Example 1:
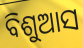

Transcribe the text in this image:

ବିଶୁଆସ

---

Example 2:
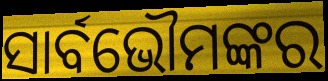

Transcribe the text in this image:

ସାର୍ବଭୌମଙ୍କର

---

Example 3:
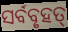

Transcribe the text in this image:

ସର୍ବବୃହତ୍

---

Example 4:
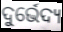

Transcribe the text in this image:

ଦୁର୍ଭେଦ୍ୟ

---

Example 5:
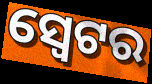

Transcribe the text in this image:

ସ୍ଵେଟର